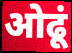
ओढूं